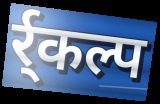
र्र्कल्प